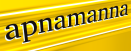
apnamanna